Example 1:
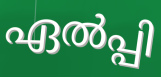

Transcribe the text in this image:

ഏൽപ്പി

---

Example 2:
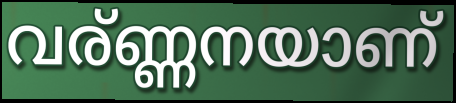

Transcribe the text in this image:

വര്ണ്ണനയാണ്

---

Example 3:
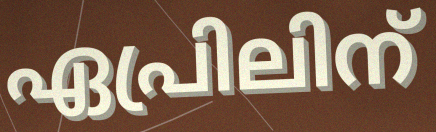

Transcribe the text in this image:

ഏപ്രിലിന്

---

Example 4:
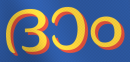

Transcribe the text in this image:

ദാം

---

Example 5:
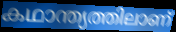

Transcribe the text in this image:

കഥാന്ത്യത്തിലാണ്